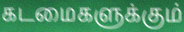
கடமைகளுக்கும்